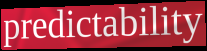
predictability